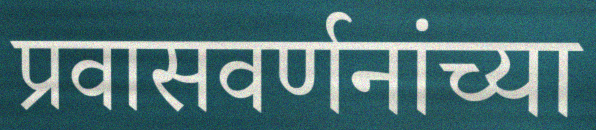
प्रवासवर्णनांच्या